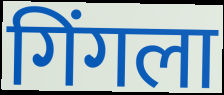
गिंगला